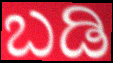
ಬಡಿ